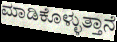
ಮಾಡಿಕೊಳ್ಳುತ್ತಾನೆ